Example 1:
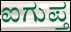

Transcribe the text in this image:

ಐಗುಪ್ತ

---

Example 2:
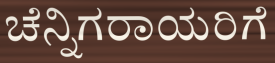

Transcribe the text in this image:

ಚೆನ್ನಿಗರಾಯರಿಗೆ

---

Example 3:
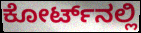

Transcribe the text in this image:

ಕೋರ್ಟ್‌ನಲ್ಲಿ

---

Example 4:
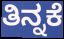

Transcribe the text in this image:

ತಿನ್ನಕೆ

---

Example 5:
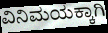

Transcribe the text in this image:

ವಿನಿಮಯಕ್ಕಾಗಿ